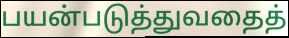
பயன்படுத்துவதைத்